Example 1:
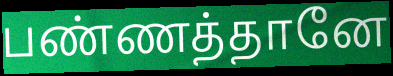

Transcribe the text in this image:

பண்ணத்தானே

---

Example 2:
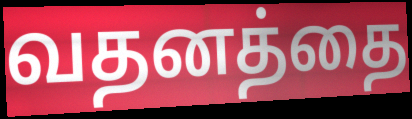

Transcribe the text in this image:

வதனத்தை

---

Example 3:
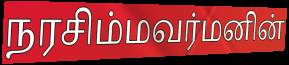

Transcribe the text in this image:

நரசிம்மவர்மனின்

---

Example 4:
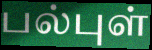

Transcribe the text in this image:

பல்புள்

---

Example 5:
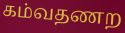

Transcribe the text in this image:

கம்வதணற